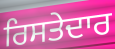
ਰਿਸਤੇਦਾਰ